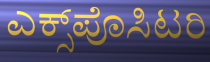
ಎಕ್ಸ್‌ಪೊಸಿಟರಿ